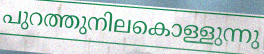
പുറത്തുനിലകൊള്ളുന്നു